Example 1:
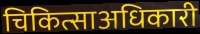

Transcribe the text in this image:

चिकित्साअधिकारी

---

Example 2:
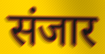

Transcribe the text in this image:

संजार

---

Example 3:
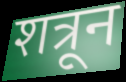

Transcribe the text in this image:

शत्रून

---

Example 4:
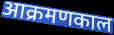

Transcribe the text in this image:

आक्रमणकाल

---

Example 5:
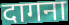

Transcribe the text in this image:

दागना